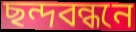
ছন্দবন্ধনে